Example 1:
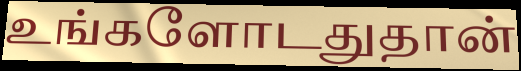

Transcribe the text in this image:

உங்களோடதுதான்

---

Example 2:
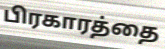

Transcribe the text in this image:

பிரகாரத்தை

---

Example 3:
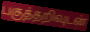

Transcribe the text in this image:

பகுத்தறிவுடன்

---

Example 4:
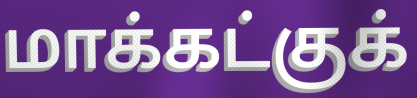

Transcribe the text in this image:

மாக்கட்குக்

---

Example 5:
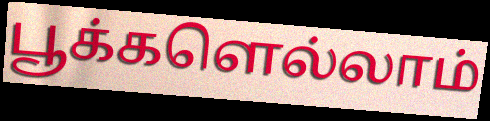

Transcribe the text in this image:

பூக்களெல்லாம்